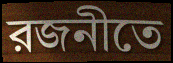
রজনীতে